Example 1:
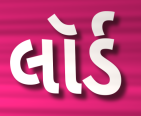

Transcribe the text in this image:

લૉર્ડ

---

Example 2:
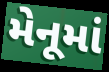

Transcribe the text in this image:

મેનૂમાં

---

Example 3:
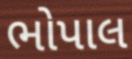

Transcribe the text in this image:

ભોપાલ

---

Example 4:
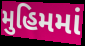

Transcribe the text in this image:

મુહિમમાં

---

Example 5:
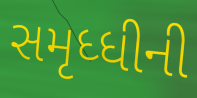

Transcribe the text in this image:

સમૃધ્ધીની